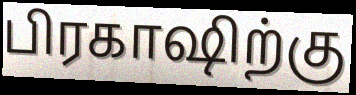
பிரகாஷிற்கு